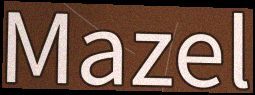
Mazel